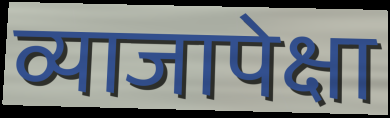
व्याजापेक्षा